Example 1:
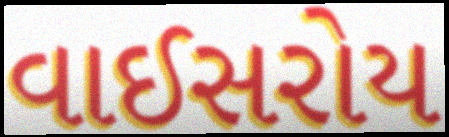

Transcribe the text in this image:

વાઈસરોય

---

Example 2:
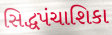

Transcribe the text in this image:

સિદ્ધપંચાશિકા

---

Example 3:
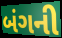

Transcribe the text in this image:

બંગની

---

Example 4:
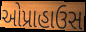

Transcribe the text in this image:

ઓપ્રાહાઉસ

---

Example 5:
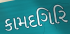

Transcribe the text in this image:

કામદગિરિ